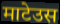
माटेउस